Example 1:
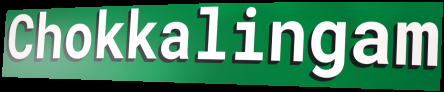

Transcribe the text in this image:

Chokkalingam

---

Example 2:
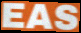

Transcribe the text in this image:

EAS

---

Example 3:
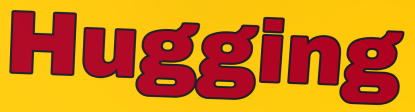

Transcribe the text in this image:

Hugging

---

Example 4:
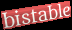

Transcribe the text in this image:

bistable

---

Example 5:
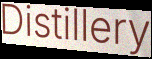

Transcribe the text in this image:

Distillery